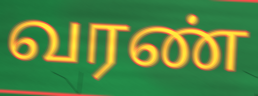
வரண்